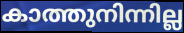
കാത്തുനിന്നില്ല